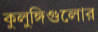
কুলুঙ্গিগুলোর